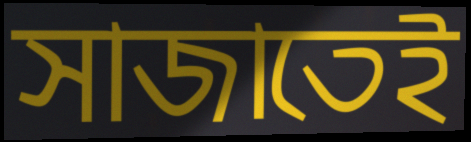
সাজাতেই